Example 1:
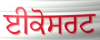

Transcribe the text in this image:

ਈਕੋਸਰਟ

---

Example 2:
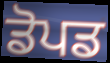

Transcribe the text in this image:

ਡੋਪਡ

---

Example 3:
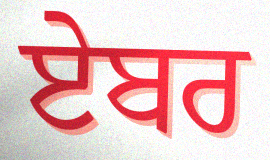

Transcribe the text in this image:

ਏਬਰ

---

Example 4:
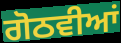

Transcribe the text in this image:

ਗੋਠਵੀਆਂ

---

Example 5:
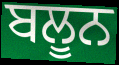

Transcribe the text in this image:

ਬਲੂਨ